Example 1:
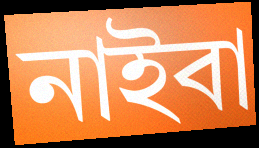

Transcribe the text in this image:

নাইবা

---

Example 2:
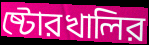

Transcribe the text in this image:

ষ্টোরখালির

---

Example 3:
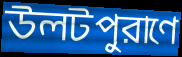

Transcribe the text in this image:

উলটপুরাণে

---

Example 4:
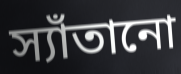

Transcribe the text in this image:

স্যাঁতানো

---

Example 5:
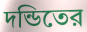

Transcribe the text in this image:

দন্ডিতের